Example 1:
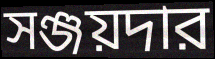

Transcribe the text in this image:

সঞ্জয়দার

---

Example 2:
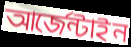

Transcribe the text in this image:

আর্জেন্টাইন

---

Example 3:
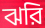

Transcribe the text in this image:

ঝরি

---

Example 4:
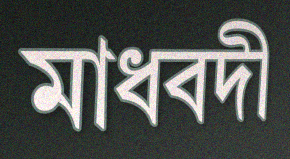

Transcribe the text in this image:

মাধবদী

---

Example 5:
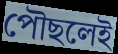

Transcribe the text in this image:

পৌছলেই